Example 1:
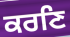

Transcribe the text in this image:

ਕਰਣਿ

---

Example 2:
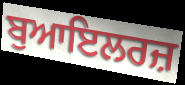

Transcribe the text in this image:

ਬੁਆਇਲਰਜ਼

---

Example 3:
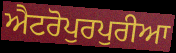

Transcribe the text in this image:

ਐਟਰੋਪੁਰਪੁਰੀਆ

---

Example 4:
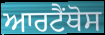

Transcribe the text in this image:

ਆਰਟੈਂਥੋਸ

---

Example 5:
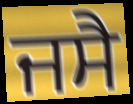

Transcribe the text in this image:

ਜਸੈ